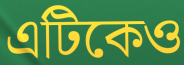
এটিকেও